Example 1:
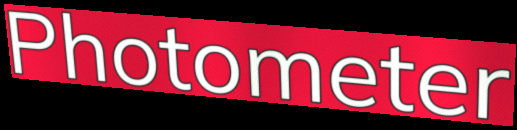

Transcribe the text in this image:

Photometer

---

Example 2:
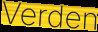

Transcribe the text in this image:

Verden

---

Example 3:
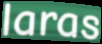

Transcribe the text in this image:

laras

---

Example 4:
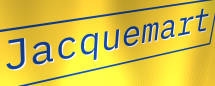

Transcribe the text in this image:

Jacquemart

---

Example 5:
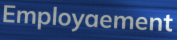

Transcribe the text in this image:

Employaement